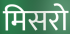
मिसरो